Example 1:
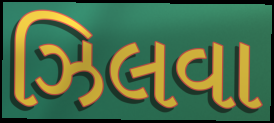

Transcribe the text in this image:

ઝિલવા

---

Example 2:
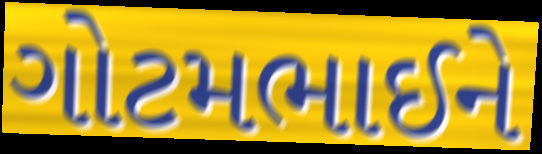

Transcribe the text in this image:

ગોટમભાઈને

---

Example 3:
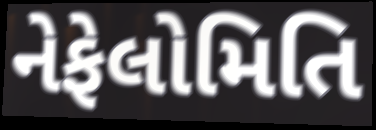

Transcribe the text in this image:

નેફેલોમિતિ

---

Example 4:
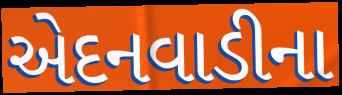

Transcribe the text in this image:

એદનવાડીના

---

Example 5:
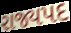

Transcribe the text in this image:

રાજ્યપદ